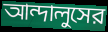
আন্দালুসের